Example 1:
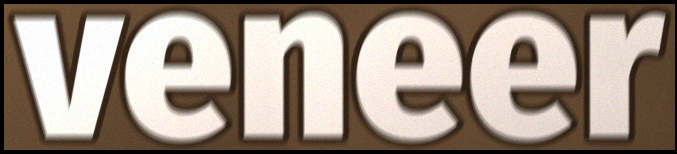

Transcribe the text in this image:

veneer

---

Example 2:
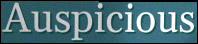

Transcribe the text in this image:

Auspicious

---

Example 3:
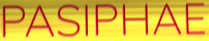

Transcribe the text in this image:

PASIPHAE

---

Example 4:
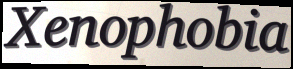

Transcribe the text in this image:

Xenophobia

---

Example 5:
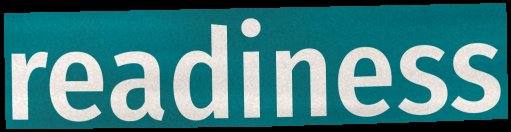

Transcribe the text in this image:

readiness